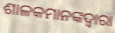
ଶାଳକମାନଙ୍କଦ୍ୱାରା